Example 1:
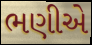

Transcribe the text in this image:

ભણીએ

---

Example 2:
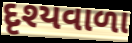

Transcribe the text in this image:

દૃશ્યવાળા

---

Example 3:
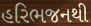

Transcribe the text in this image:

હરિભજનથી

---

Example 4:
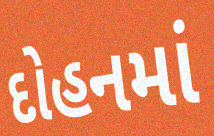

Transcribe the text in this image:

દોહનમાં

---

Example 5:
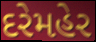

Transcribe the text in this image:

દરેમહેર